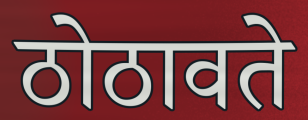
ठोठावते